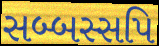
સબ્બસ્સપિ